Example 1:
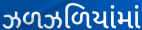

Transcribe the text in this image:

ઝળઝળિયાંમાં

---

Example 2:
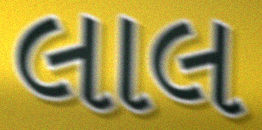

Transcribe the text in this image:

લાલ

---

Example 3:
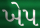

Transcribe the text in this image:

ખેપ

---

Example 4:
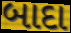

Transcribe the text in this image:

બાદા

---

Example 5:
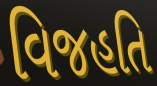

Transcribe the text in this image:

વિજહતિ